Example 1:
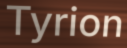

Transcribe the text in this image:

Tyrion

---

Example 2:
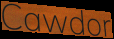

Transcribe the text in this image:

Cawdor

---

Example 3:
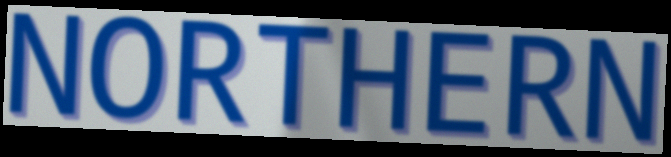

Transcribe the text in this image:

NORTHERN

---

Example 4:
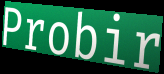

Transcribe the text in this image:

Probir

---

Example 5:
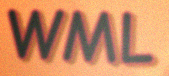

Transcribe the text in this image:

WML